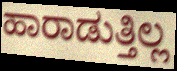
ಹಾರಾಡುತ್ತಿಲ್ಲ